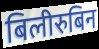
बिलीरुबिन